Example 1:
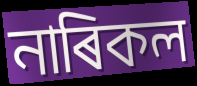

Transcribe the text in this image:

নাৰিকল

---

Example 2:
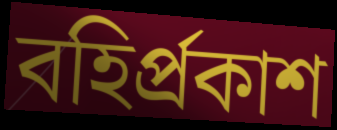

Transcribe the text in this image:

বহিৰ্প্ৰকাশ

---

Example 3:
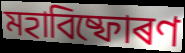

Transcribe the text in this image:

মহাবিষ্ফোৰণ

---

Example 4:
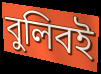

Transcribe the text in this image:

বুলিবই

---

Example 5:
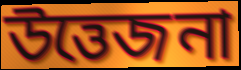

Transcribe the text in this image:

উত্তেজনা